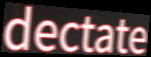
dectate